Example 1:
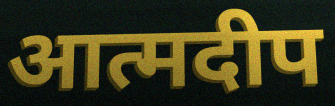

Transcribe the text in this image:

आत्मदीप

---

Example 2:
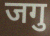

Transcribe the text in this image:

जगु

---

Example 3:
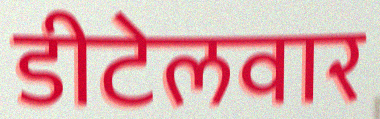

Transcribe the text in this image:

डीटेलवार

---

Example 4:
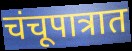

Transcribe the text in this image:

चंचूपात्रात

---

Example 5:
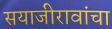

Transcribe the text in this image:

सयाजीरावांचा